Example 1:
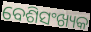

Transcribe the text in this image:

ବେଶିସଂଖ୍ୟକ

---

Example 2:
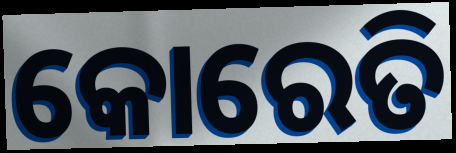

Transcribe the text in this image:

କୋରେତି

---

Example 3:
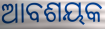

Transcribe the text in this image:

ଆବଶୟକ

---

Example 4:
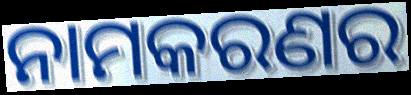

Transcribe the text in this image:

ନାମକରଣର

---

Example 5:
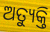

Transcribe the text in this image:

ଅତ୍ୟୁକ୍ତି